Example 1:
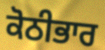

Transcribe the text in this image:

ਕੋਠੀਭਾਰ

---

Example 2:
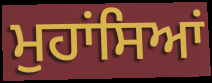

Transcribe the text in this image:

ਮੁਹਾਂਸਿਆਂ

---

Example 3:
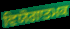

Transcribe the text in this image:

ਵਿਯੋਗਾਤਮਕ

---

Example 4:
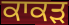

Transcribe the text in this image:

ਕਾਕੜ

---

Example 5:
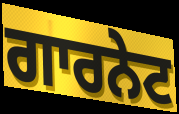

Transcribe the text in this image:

ਗਾਰਨੇਟ